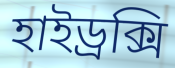
হাইড্রক্সি